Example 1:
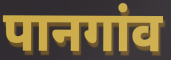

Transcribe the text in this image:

पानगांव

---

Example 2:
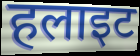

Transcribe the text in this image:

हलाइट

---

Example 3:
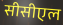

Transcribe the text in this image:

सीसीएल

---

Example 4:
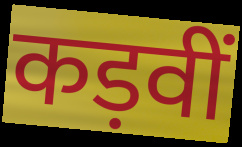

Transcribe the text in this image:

कड़वीं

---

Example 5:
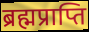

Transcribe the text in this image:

ब्रह्मप्राप्ति